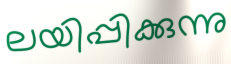
ലയിപ്പിക്കുന്നു